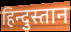
हिन्दुस्तान